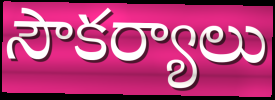
సౌకర్యాలు